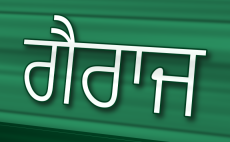
ਗੈਰਾਜ